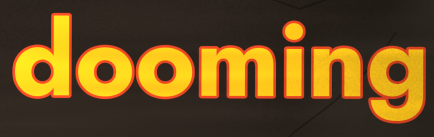
dooming